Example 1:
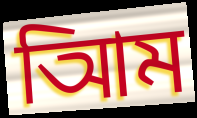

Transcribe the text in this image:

আিম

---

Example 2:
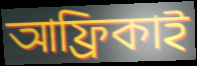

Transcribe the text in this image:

আফ্রিকাই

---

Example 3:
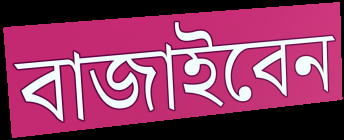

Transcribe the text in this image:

বাজাইবেন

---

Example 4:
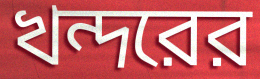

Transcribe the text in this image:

খন্দরের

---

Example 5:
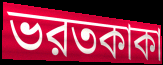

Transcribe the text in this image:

ভরতকাকা